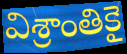
విశ్రాంతికై